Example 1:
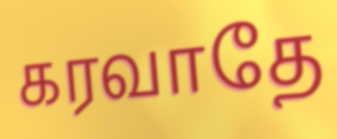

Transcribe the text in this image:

கரவாதே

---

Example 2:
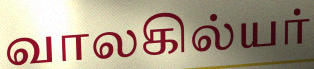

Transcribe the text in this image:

வாலகில்யர்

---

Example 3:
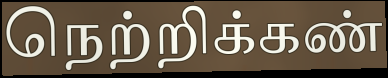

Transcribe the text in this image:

நெற்றிக்கண்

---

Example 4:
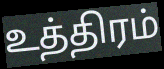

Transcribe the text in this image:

உத்திரம்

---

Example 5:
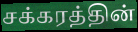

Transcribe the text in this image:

சக்கரத்தின்